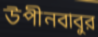
উপীনবাবুর